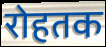
रोहतक